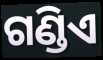
ଗଣ୍ଡିଏ